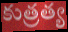
కుత్రత్య